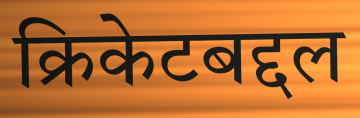
क्रिकेटबद्दल